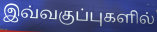
இவ்வகுப்புகளில்